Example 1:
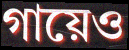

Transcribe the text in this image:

গায়েও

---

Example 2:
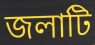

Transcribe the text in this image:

জলাটি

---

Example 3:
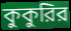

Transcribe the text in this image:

কুকুরির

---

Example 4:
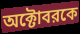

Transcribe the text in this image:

অক্টোবরকে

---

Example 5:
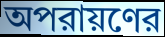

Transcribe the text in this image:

অপরায়ণের